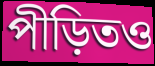
পীড়িতও